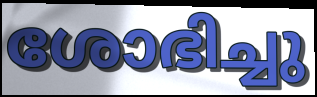
ശോഭിച്ചു